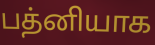
பத்னியாக